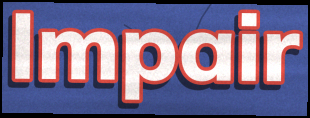
Impair